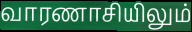
வாரணாசியிலும்